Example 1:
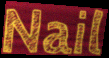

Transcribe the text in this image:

Nail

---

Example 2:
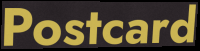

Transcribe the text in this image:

Postcard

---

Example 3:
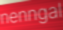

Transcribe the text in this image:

nenngal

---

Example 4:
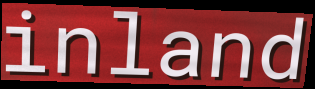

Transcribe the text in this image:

inland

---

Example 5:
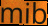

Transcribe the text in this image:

mib